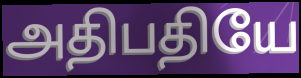
அதிபதியே